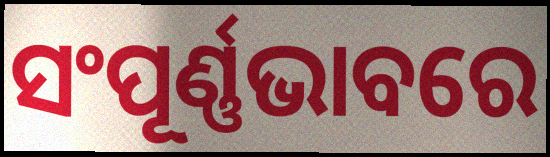
ସଂପୂର୍ଣ୍ଣଭାବରେ